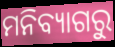
ମନିବ୍ୟାଗରୁ